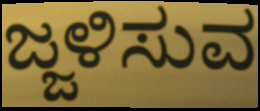
ಜ್ಜಳಿಸುವ